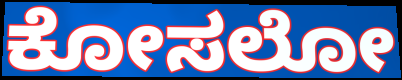
ಕೋಸಲೋ